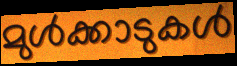
മുൾക്കാടുകൾ